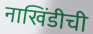
नाखिंडीची